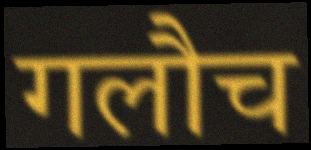
गलौच